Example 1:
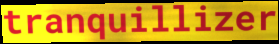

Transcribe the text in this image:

tranquillizer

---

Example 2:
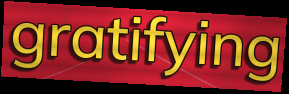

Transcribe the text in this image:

gratifying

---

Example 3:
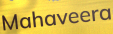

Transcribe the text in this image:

Mahaveera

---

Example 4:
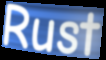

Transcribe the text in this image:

Rust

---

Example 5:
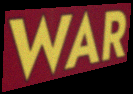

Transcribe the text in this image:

WAR